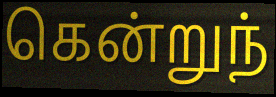
கென்றுந்